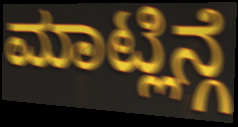
ಮಾಟ್ಲಿನ್ಗೆ